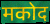
मकोद